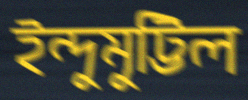
ইন্দুমুট্টিল